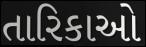
તારિકાઓ